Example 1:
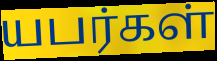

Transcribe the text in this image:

யபர்கள்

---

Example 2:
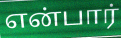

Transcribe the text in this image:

என்பார்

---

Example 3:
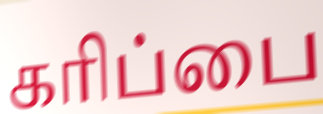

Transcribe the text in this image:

கரிப்பை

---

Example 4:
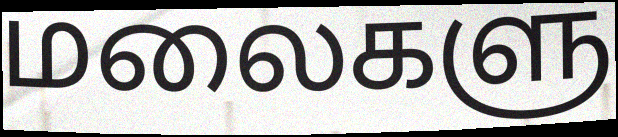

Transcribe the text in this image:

மலைகளு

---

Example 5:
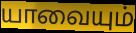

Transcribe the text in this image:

யாவையும்